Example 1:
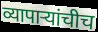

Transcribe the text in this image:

व्यापाऱ्यांचीच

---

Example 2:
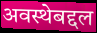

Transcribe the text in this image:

अवस्थेबद्दल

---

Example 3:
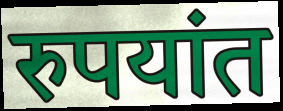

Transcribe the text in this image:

रुपयांत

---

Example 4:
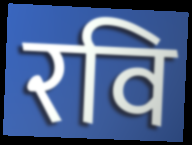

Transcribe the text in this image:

रवि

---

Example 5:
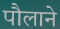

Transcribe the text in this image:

पौलाने